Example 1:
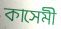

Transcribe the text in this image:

কাসেমী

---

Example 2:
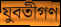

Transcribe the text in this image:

যুবতীগণ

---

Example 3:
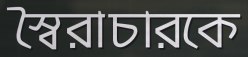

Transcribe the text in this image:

স্বৈরাচারকে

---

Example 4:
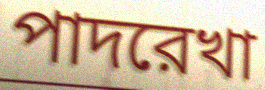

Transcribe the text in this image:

পাদরেখা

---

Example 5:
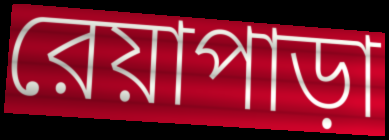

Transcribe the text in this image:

রেয়াপাড়া